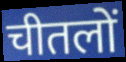
चीतलों